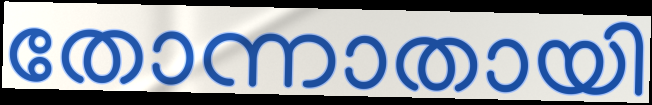
തോന്നാതായി